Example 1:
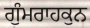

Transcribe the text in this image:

ਗੁੰਮਰਾਹਕੁਨ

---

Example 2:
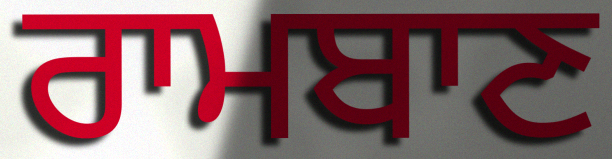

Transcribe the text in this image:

ਰਾਮਬਾਣ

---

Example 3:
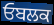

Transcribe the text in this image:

ਓਬਲਕ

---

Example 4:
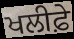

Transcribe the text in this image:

ਖਲੀਫ਼ੇ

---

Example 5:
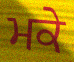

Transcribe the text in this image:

ਮਕੇ